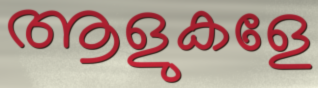
ആളുകളേ